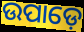
ଉପାଡ଼େ